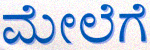
ಮೇಲೆಗೆ